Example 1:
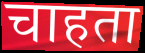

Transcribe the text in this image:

चाहता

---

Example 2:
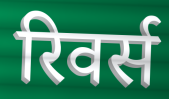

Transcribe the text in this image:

रिवर्स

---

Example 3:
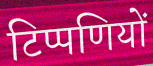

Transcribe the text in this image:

टिप्पणियों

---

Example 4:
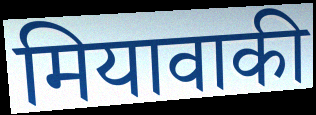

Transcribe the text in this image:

मियावाकी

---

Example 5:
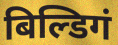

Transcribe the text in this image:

बिल्डिगं